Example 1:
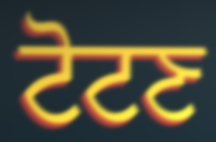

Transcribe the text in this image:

ਟੋਟਣ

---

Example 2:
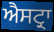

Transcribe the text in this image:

ਐਸਟ੍ਰਾ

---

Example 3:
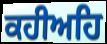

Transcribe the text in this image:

ਕਹੀਅਹਿ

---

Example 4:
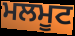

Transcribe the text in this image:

ਮਲਮੂਟ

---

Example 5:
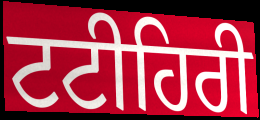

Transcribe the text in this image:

ਟਟੀਹਿਰੀ